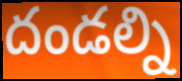
దండల్ని